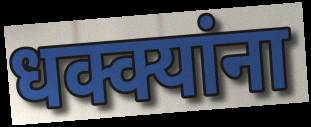
धक्क्यांना